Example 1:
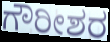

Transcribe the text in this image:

ಗೌರೀಶರ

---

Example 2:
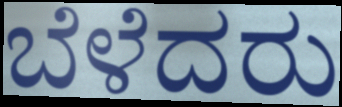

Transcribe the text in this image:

ಬೆಳೆದರು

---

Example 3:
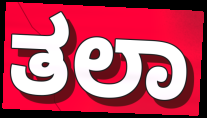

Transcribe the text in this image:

ತಲಾ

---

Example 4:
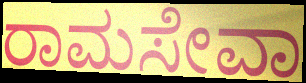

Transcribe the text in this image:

ರಾಮಸೇವಾ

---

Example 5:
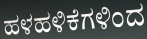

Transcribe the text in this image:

ಹಳಹಳಿಕೆಗಳಿಂದ